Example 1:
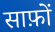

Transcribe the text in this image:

साफ़ों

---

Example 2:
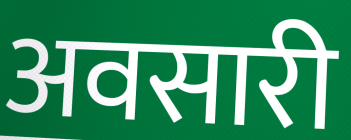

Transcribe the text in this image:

अवसारी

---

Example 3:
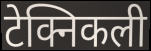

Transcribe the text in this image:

टेक्निकली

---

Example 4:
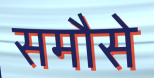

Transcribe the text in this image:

समौसे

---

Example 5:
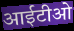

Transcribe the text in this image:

आईटीओ